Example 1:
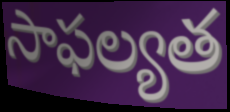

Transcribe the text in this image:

సాఫల్యత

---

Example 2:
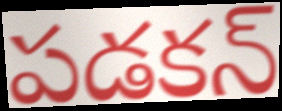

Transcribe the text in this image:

పడకన్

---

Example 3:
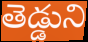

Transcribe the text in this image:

తెడ్డుని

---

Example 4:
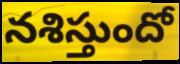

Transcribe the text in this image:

నశిస్తుందో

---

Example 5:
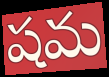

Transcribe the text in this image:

షమ